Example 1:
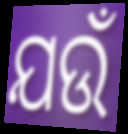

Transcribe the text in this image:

ଯଉଁ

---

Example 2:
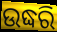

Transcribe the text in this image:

ଉଦ୍ଧରି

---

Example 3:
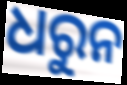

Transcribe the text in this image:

ଧରୁନ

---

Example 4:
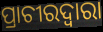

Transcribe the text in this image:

ପ୍ରାଚୀରଦ୍ୱାରା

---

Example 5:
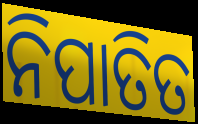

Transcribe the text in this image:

ନିପାତିତ